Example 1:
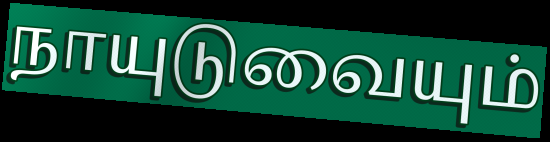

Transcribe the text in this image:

நாயுடுவையும்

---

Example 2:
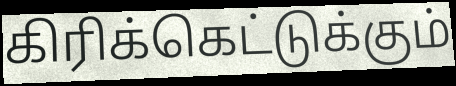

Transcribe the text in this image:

கிரிக்கெட்டுக்கும்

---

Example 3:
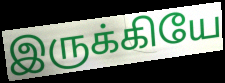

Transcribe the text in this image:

இருக்கியே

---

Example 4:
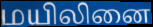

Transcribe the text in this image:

மயிலினை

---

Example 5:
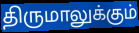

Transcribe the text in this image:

திருமாலுக்கும்